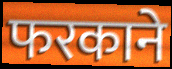
फरकाने